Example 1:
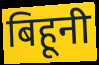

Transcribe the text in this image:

बिहूनी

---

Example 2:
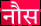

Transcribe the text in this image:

नौस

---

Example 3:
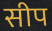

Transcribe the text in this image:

सीप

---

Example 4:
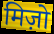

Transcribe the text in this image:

मिज़ो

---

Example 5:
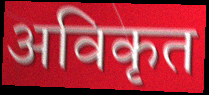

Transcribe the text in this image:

अविकृत